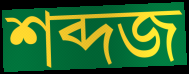
শব্দজ